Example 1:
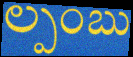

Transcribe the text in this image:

ల్పంబు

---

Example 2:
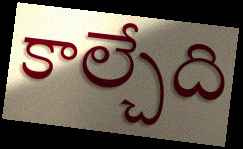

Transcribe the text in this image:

కాల్చేది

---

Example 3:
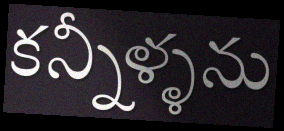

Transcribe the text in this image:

కన్నీళ్ళను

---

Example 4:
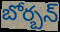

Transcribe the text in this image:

బోర్బన్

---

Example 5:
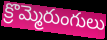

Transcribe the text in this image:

క్రొమ్మెరుంగులు